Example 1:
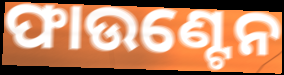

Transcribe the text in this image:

ଫାଉଣ୍ଟେନ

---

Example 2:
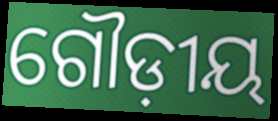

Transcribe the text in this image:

ଗୌଡ଼ୀୟ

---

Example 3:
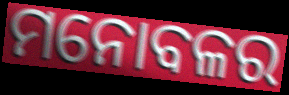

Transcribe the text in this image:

ମନୋବଳର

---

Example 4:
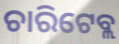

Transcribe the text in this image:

ଚାରିଟେବ୍ଲ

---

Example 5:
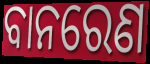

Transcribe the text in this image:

ବାନରେଣ